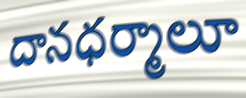
దానధర్మాలూ